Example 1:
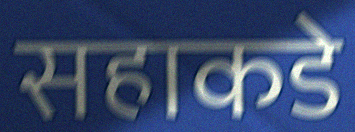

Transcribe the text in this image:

सहाकडे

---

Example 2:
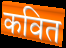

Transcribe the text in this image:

कवित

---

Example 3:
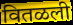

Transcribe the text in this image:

वितळली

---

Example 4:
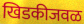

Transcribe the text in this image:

खिडकीजवळ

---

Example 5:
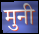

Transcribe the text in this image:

मुनी